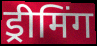
ड्रीमिंग